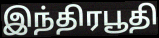
இந்திரபூதி